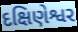
દક્ષિણેશ્વર